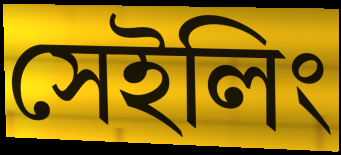
সেইলিং